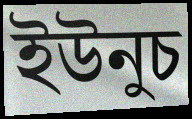
ইউনুচ